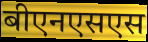
बीएनएसएस